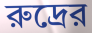
রুদ্রের